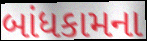
બાંધકામના